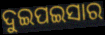
ଦୁଇପଇସାର